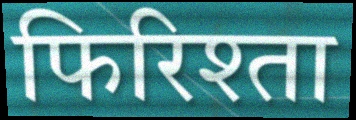
फिरिश्ता